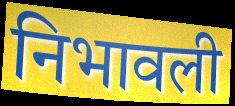
निभावली